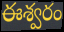
ఈశ్వరం